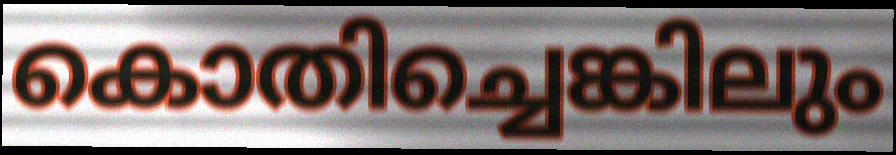
കൊതിച്ചെങ്കിലും